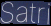
Satri